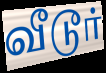
வீடூர்